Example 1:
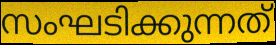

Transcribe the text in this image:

സംഘടിക്കുന്നത്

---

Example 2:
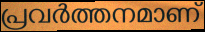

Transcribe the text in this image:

പ്രവർത്തനമാണ്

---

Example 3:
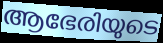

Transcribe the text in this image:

ആഭേരിയുടെ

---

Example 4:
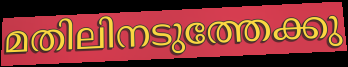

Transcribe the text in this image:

മതിലിനടുത്തേക്കു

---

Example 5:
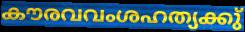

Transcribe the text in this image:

കൗരവവംശഹത്യക്കു്